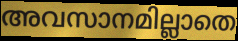
അവസാനമില്ലാതെ